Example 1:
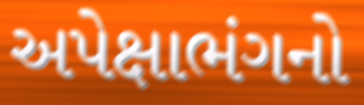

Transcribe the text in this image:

અપેક્ષાભંગનો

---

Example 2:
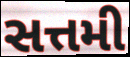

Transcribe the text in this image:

સત્તમી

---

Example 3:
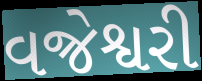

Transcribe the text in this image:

વજ્રેશ્વરી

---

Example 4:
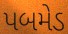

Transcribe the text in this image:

પબમેડ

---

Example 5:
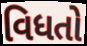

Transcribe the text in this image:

વિધતો